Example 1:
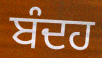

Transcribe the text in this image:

ਬੰਦਹ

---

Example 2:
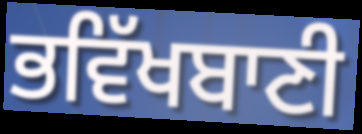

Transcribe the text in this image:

ਭਵਿੱਖਬਾਣੀ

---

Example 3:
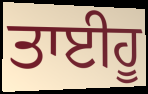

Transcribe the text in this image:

ਤਾਈਹੂ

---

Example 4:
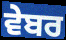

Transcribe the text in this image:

ਵੇਬਰ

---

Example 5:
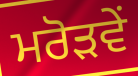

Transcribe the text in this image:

ਮਰੋੜਵੇਂ